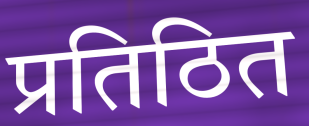
प्रतिठित